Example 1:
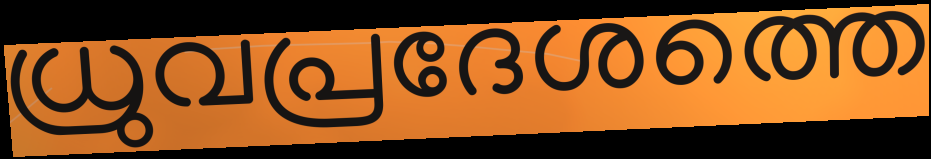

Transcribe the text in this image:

ധ്രുവപ്രദേശത്തെ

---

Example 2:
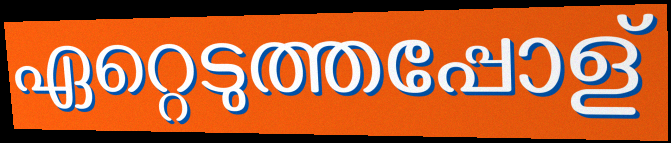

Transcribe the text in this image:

ഏറ്റെടുത്തപ്പോള്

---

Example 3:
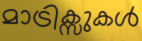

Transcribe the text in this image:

മാട്രിക്സുകൾ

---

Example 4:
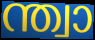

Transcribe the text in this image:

ന്ത്വാ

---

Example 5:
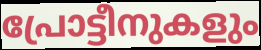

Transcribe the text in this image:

പ്രോട്ടീനുകളും